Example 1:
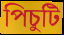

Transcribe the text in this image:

পিচুটি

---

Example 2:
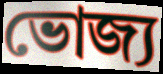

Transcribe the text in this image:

ভোজ্য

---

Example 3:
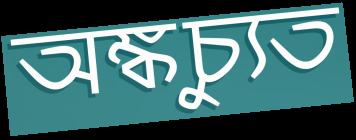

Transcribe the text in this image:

অঙ্কচ্যুত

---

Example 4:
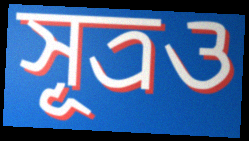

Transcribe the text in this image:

সূত্রও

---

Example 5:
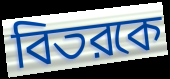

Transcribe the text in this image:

বিতরকে